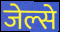
जेल्से